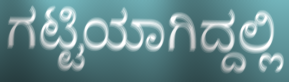
ಗಟ್ಟಿಯಾಗಿದ್ದಲ್ಲಿ